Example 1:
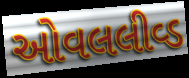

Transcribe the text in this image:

ઓવલલીવ્ડ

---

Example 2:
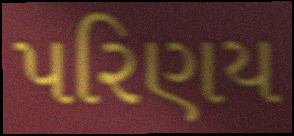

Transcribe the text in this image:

પરિણય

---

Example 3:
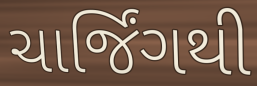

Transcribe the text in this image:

ચાર્જિંગથી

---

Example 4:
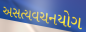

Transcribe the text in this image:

અસત્યવચનયોગ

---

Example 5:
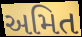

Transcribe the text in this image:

અમિત